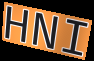
HNI